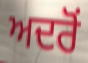
ਅਦਰੋਂ